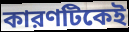
কারণটিকেই